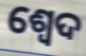
ଶ୍ଵେଦ